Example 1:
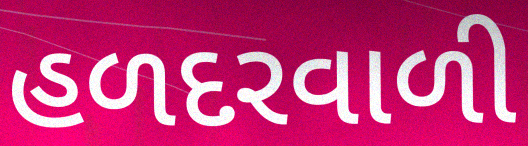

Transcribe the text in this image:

હળદરવાળી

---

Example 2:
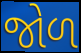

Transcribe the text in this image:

જોળ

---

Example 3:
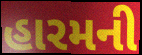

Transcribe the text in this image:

હારમની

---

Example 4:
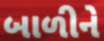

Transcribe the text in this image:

બાળીને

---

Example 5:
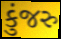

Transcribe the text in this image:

કુંજરુ